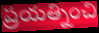
ప్రయత్నించి